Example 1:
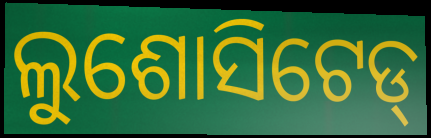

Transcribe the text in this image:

ଲୁଶୋସିଟେଡ୍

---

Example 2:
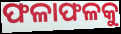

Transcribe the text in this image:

ଫଳାଫଳକୁ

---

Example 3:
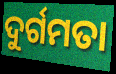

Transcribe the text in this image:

ଦୁର୍ଗମତା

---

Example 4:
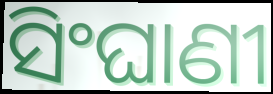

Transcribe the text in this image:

ସିଂଘାଣୀ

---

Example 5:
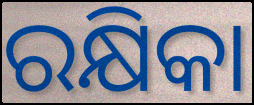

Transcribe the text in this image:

ରକ୍ଷିକା